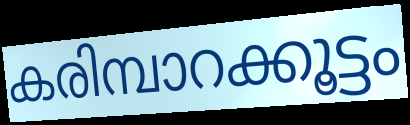
കരിമ്പാറക്കൂട്ടം